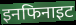
इनफिनाइट